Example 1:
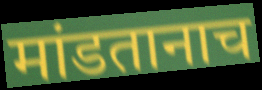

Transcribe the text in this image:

मांडतानाच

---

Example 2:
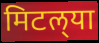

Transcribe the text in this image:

मिटल्या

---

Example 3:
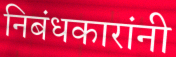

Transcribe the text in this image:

निबंधकारांनी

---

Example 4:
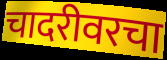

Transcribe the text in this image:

चादरीवरचा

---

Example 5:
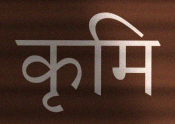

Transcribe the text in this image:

कृमि